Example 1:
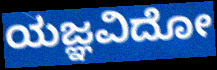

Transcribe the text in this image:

ಯಜ್ಞವಿದೋ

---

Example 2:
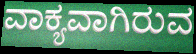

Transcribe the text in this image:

ವಾಕ್ಯವಾಗಿರುವ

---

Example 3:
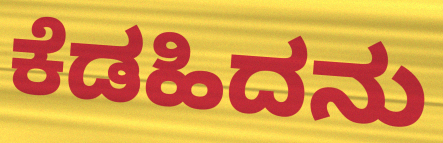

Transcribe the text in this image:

ಕೆಡಹಿದನು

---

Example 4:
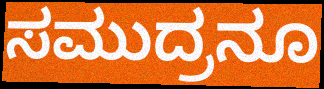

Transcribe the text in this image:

ಸಮುದ್ರನೂ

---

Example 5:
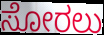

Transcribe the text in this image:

ಸೋರಲು